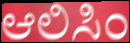
ಆಲಿಸಿಂ